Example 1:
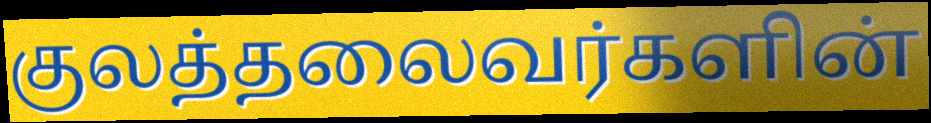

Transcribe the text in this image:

குலத்தலைவர்களின்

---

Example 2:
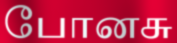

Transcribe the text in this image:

போனசு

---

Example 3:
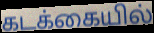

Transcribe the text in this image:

கடக்கையில்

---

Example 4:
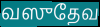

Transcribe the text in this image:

வஸுதேவ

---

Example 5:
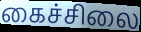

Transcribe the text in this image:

கைச்சிலை